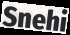
Snehi